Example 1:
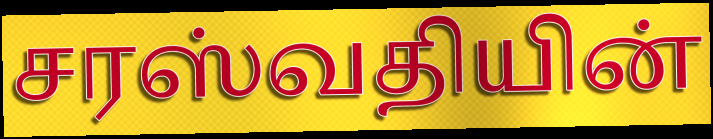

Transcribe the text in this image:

சரஸ்வதியின்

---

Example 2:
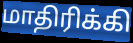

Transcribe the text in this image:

மாதிரிக்கி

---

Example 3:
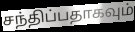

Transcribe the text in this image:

சந்திப்பதாகவும்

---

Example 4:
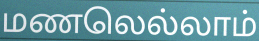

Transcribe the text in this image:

மணலெல்லாம்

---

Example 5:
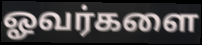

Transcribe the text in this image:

ஓவர்களை